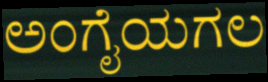
ಅಂಗೈಯಗಲ